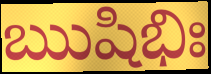
ఋషిభిః